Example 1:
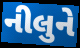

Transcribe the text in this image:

નીલુને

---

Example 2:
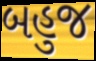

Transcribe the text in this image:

બહુજ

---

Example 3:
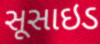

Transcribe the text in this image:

સૂસાઇડ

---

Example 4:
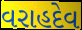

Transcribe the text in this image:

વરાહદેવ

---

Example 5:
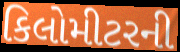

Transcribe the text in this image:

કિલોમીટરની